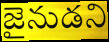
జైనుడని